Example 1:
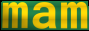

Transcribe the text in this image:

mam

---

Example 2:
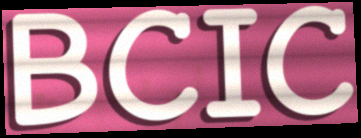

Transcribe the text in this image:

BCIC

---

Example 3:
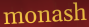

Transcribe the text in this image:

monash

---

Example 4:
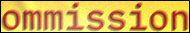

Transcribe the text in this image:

ommission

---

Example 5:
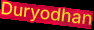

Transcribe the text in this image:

Duryodhan